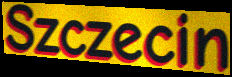
Szczecin